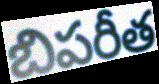
బిపరీత